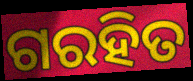
ଗରହିତ